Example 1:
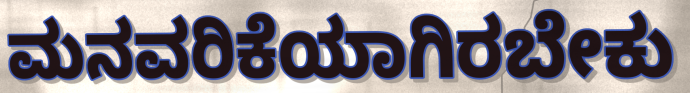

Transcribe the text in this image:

ಮನವರಿಕೆಯಾಗಿರಬೇಕು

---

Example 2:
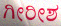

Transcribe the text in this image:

ಗೀರೀಶ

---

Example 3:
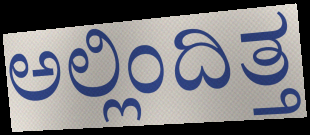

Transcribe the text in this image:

ಅಲ್ಲಿಂದಿತ್ತ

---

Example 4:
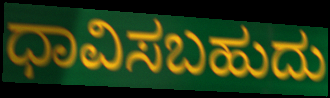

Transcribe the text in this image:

ಧಾವಿಸಬಹುದು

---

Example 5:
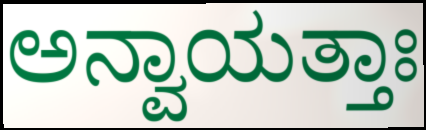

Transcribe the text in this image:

ಅನ್ವಾಯತ್ತಾಃ